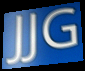
JJG